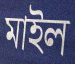
মাইল